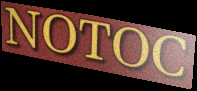
NOTOC